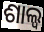
ଶାଲ୍ୱ